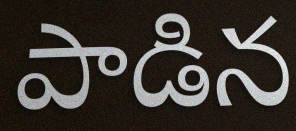
పాడిన